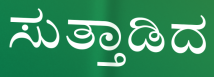
ಸುತ್ತಾಡಿದ